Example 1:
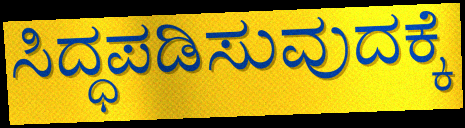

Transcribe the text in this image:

ಸಿದ್ಧಪಡಿಸುವುದಕ್ಕೆ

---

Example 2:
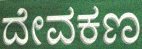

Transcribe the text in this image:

ದೇವಕಣ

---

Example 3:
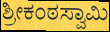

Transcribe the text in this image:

ಶ್ರೀಕಂಠಸ್ವಾಮಿ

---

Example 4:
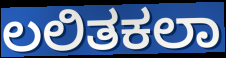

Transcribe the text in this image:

ಲಲಿತಕಲಾ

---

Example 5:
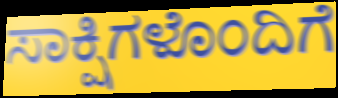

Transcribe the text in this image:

ಸಾಕ್ಷಿಗಳೊಂದಿಗೆ